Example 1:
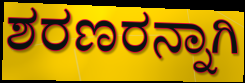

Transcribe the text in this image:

ಶರಣರನ್ನಾಗಿ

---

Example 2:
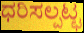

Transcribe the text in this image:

ಧರಿಸಲ್ಪಟ್ಟ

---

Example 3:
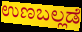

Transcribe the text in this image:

ಉಣಬಲ್ಲಡೆ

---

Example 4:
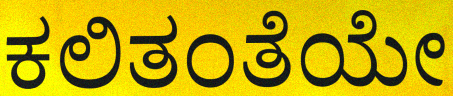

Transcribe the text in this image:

ಕಲಿತಂತೆಯೇ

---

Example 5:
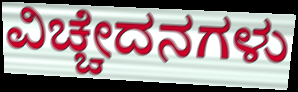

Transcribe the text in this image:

ವಿಚ್ಚೇದನಗಳು